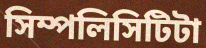
সিম্পলিসিটিটা